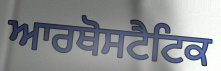
ਆਰਥੋਸਟੈਟਿਕ